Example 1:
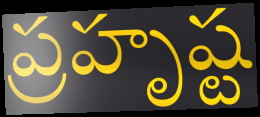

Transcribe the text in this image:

ప్రహృష్ట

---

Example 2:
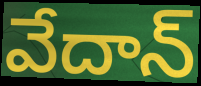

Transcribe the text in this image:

వేదాన్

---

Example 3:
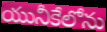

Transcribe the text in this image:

యునీకేలోను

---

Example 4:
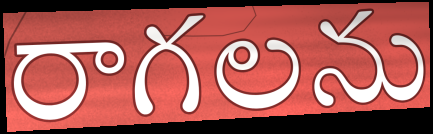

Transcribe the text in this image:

రాగలను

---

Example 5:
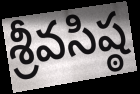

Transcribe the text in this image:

శ్రీవసిష్ఠ